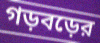
গড়বড়ের